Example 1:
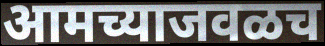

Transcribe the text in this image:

आमच्याजवळच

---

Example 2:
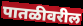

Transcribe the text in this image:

पातळीवरील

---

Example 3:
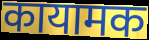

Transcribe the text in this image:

कायामक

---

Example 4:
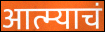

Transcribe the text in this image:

आत्म्याचं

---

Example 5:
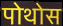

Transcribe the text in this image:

पोथोस